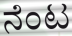
ನೆಂಟ